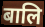
बालि